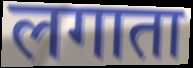
लगाता